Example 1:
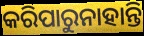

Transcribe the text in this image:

କରିପାରୁନାହାନ୍ତି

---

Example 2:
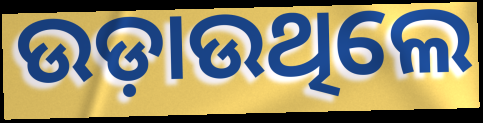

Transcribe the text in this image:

ଉଡ଼ାଉଥିଲେ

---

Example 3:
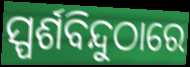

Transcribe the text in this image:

ସ୍ପର୍ଶବିନ୍ଦୁଠାରେ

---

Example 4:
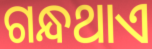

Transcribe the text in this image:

ଗନ୍ଧଥାଏ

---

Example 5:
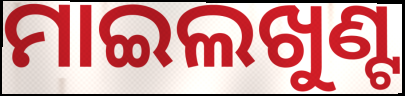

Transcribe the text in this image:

ମାଇଲଖୁଣ୍ଟ